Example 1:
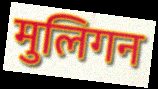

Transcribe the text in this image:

मुलिगन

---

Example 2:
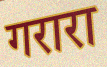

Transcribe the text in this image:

गरारा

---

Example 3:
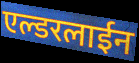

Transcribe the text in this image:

एल्डरलाईन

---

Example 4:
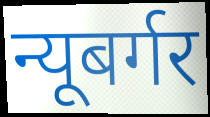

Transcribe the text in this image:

न्यूबर्गर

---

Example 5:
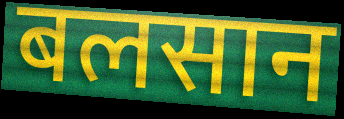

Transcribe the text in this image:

बलसान